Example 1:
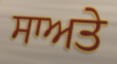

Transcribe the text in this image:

ਸਾਅਤੇ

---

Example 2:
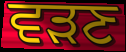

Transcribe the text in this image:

ਵੜਣ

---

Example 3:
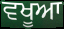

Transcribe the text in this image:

ਵਖੂਆ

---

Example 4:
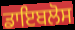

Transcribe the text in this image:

ਡਾਇਬਲੋਸ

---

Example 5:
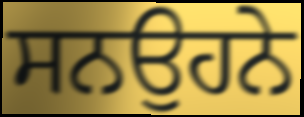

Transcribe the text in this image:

ਸਨਉਹਨੇ